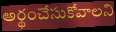
అర్థంచేసుకోవాలని